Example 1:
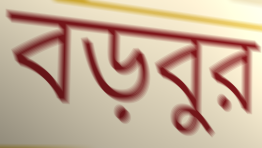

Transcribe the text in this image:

বড়বুর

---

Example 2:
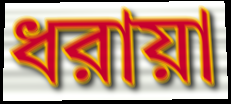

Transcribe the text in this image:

ধরায়া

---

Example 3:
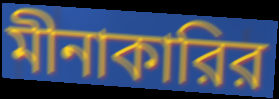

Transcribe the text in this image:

মীনাকারির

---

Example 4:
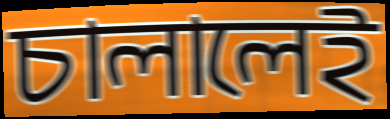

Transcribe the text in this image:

চালালেই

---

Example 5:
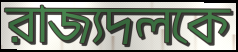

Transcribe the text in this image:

রাজ্যদলকে